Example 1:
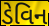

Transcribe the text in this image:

ડેવિન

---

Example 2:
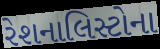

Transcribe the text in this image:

રેશનાલિસ્ટોના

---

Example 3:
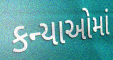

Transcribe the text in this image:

કન્યાઓમાં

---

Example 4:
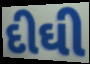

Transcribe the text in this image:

દીઘી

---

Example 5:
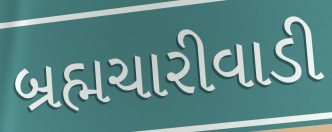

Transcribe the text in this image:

બ્રહ્મચારીવાડી